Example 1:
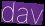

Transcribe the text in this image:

dav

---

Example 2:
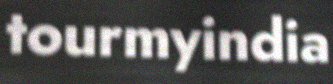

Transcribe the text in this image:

tourmyindia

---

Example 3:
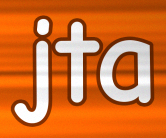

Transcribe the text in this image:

jta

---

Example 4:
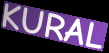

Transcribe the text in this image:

KURAL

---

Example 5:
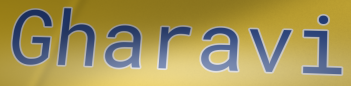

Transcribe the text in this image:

Gharavi